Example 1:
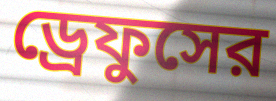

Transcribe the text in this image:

ড্রেফুসের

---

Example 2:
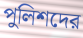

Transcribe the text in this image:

পুলিশদের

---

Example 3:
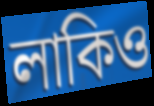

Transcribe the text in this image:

লাকিও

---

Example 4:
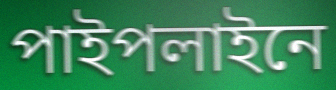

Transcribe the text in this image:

পাইপলাইনে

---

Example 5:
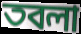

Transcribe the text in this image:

তবলা